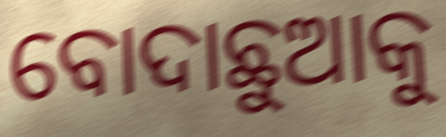
ବୋଦାଛୁଆକୁ